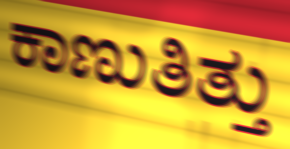
ಕಾಣುತಿತ್ತು